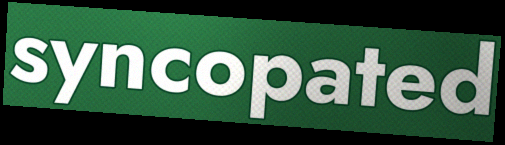
syncopated